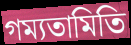
গম্যতামিতি